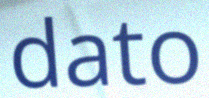
dato